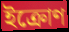
ইক্রোণ